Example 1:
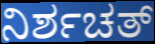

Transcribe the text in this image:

ನಿರ್ಶಚತ್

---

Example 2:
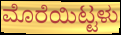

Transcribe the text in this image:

ಮೊರೆಯಿಟ್ಟಳು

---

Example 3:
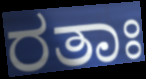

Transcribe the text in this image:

ರತಾಃ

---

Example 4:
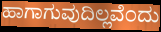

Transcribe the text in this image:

ಹಾಗಾಗುವುದಿಲ್ಲವೆಂದು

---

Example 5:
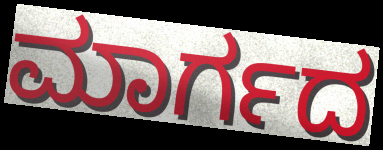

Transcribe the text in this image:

ಮಾರ್ಗದ